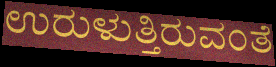
ಉರುಳುತ್ತಿರುವಂತೆ